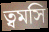
ত্বমসি